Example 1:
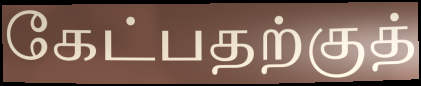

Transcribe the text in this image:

கேட்பதற்குத்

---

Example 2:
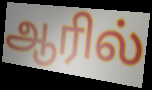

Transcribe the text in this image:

ஆரில்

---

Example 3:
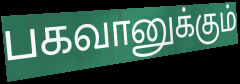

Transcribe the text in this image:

பகவானுக்கும்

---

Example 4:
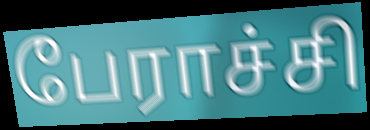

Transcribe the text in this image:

பேராச்சி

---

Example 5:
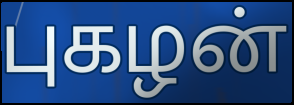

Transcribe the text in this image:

புகழன்